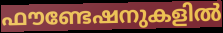
ഫൗണ്ടേഷനുകളിൽ